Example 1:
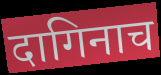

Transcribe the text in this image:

दागिनाच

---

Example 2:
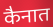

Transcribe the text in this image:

कैनात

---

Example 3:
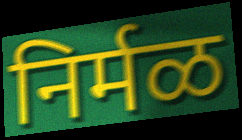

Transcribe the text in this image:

निर्मळ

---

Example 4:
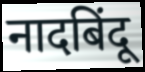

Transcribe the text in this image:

नादबिंदू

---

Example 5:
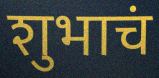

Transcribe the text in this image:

शुभाचं